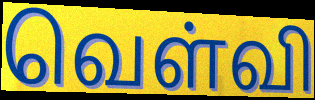
வெள்வி